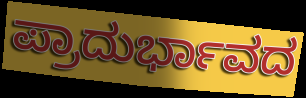
ಪ್ರಾದುರ್ಭಾವದ